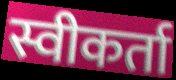
स्वीकर्ता